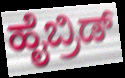
ಹೈಬ್ರಿಡ್